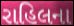
રાહિલના